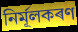
নিৰ্মূলকৰণ